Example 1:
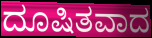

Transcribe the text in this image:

ದೂಷಿತವಾದ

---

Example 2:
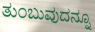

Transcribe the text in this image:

ತುಂಬುವುದನ್ನೂ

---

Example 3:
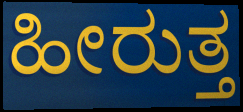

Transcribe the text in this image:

ಹೀರುತ್ತ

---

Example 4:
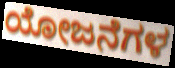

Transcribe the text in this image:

ಯೋಜನೆಗಳ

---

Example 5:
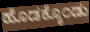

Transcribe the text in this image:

ಹೊಡಕ್ಕೊಂಡು